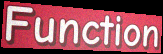
Function